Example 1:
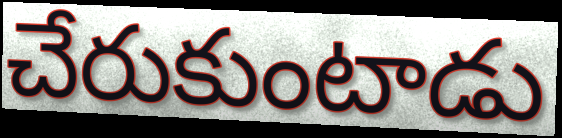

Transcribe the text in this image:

చేరుకుంటాడు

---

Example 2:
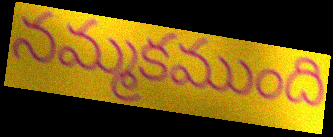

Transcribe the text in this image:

నమ్మకముంది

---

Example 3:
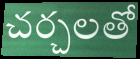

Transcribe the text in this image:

చర్చలతో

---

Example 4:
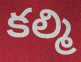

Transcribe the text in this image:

కల్మి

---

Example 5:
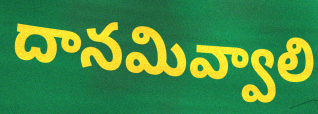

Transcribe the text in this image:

దానమివ్వాలి